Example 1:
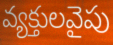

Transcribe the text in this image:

వ్యక్తులవైపు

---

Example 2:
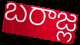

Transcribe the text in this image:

బరాజ్ల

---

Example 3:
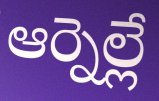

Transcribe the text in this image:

ఆర్నెల్లే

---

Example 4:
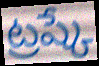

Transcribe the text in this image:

ట్రష్కే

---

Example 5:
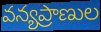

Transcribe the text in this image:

వన్యప్రాణుల